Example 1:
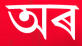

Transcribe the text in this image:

অৰ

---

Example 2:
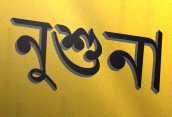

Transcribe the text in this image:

নুশুনা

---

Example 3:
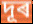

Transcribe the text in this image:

দূৰ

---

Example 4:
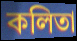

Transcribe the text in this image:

কলিতা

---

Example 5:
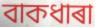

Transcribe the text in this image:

বাকধাৰা